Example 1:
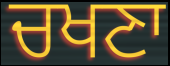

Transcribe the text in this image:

ਚਖਣਾ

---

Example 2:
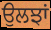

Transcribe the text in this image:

ਉਲਝਾਂ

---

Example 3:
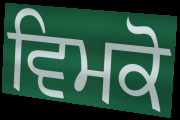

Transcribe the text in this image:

ਵਿਮਕੋ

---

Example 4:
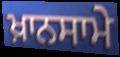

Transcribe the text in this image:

ਖ਼ਾਨਸਾਮੇ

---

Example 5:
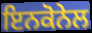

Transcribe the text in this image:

ਇਨਕੋਨੇਲ